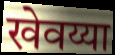
खेवय्या